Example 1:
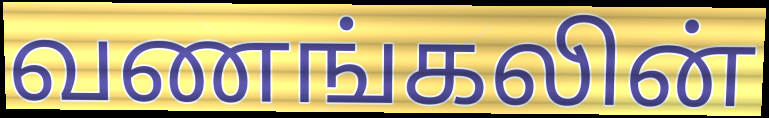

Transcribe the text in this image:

வணங்கலின்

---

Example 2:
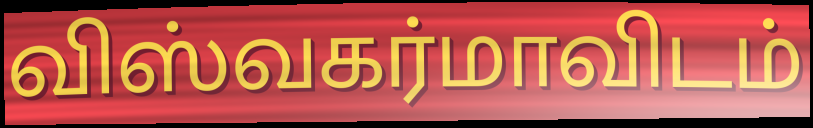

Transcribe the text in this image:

விஸ்வகர்மாவிடம்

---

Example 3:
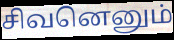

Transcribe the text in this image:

சிவனெனும்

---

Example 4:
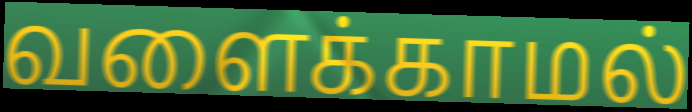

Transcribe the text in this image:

வளைக்காமல்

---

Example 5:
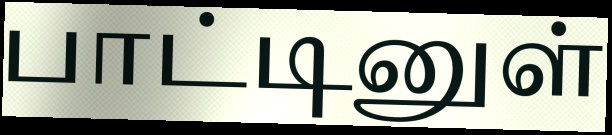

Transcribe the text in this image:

பாட்டினுள்